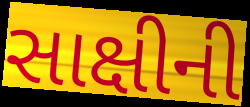
સાક્ષીની